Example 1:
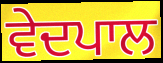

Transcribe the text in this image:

ਵੇਦਪਾਲ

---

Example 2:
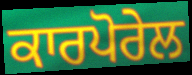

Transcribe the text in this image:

ਕਾਰਪੋਰੇਲ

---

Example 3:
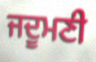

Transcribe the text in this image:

ਜਦੂਮਣੀ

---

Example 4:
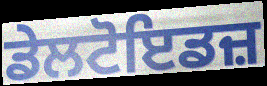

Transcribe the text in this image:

ਡੇਲਟੋਇਡਜ਼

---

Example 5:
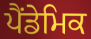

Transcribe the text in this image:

ਪੈਂਡੇਮਿਕ